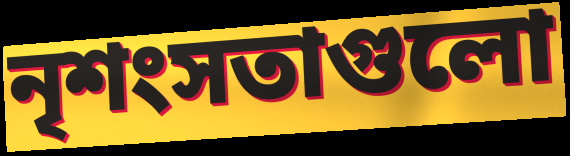
নৃশংসতাগুলো